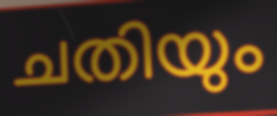
ചതിയും